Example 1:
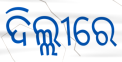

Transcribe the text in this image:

ଦିଲ୍ଲୀରେ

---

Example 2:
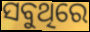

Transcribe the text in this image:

ସବୁଥିରେ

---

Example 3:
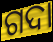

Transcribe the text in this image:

ଗଦା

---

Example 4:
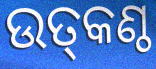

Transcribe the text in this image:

ଉତ୍‌କଣ୍ଠ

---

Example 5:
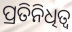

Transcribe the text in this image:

ପ୍ରତିନିଧିତ୍ବ